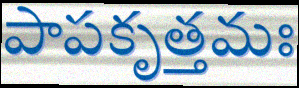
పాపకృత్తమః